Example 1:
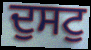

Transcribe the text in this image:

ਦੁਸਟੁ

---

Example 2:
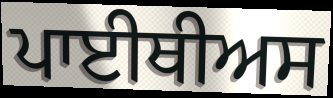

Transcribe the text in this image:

ਪਾਈਥੀਅਸ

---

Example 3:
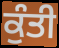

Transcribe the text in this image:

ਕੁੰਤੀ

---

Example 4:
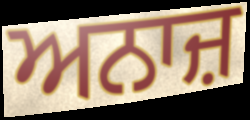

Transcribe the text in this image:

ਅਨਾਜ਼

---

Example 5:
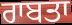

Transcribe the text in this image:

ਰਾਬਤਾ